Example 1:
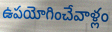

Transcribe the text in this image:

ఉపయోగించేవాళ్లం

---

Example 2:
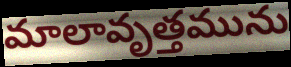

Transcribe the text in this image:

మాలావృత్తమును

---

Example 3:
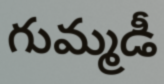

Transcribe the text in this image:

గుమ్మడీ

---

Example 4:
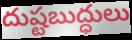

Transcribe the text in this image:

దుష్టబుద్ధులు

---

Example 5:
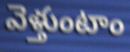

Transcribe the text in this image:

వెళ్తుంటాం